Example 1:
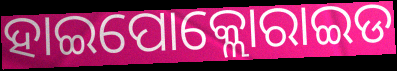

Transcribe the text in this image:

ହାଇପୋକ୍ଲୋରାଇଡ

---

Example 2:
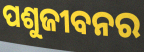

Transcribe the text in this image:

ପଶୁଜୀବନର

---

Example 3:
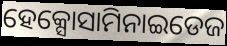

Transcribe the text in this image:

ହେକ୍ସୋସାମିନାଇଡେଜ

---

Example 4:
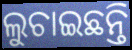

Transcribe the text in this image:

ଲୁଚାଇଛନ୍ତି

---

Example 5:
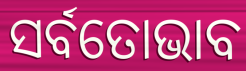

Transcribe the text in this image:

ସର୍ବତୋଭାବ